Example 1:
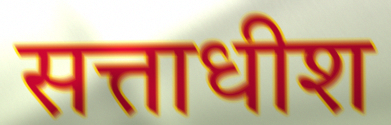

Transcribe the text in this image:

सत्ताधीश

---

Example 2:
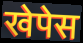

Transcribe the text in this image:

खेपेस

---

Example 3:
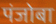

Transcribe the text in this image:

पंजोबा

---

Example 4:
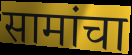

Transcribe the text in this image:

सामांचा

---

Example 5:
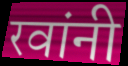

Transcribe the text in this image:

रवांनी